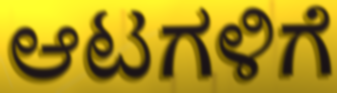
ಆಟಗಳಿಗೆ